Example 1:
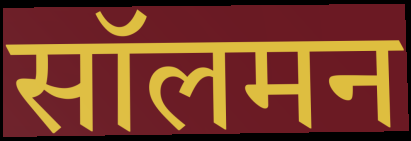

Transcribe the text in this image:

सॉलमन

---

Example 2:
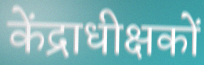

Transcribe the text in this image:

केंद्राधीक्षकों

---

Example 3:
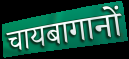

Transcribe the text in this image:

चायबागानों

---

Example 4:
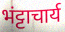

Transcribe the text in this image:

भंट्टाचार्य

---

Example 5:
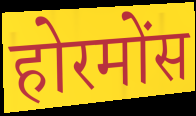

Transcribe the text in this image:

होरमोंस